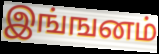
இங்ஙனம்